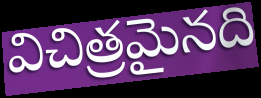
విచిత్రమైనది